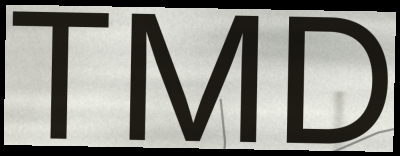
TMD